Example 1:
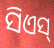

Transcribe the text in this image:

ସିଏସ୍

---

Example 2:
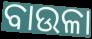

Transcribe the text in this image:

ବାଉଳା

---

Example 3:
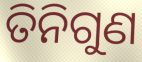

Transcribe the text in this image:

ତିନିଗୁଣ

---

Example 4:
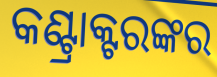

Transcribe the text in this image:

କଣ୍ଟ୍ରାକ୍ଟରଙ୍କର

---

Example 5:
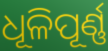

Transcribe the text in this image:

ଧୂଳିପୂର୍ଣ୍ଣ